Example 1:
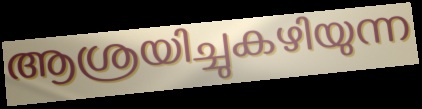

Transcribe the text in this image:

ആശ്രയിച്ചുകഴിയുന്ന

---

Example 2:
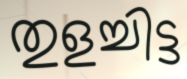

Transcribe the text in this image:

തുളച്ചിട്ട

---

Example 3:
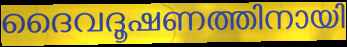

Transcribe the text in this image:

ദൈവദൂഷണത്തിനായി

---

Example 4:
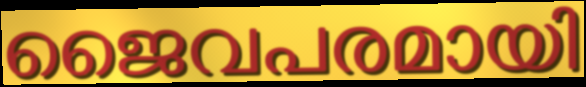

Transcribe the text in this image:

ജൈവപരമായി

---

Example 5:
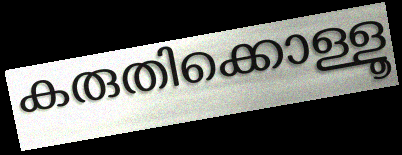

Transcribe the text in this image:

കരുതിക്കൊള്ളൂ